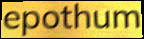
epothum